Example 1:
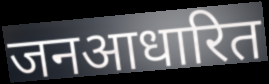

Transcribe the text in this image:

जनआधारित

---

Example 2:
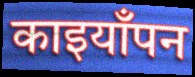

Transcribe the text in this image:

काइयाँपन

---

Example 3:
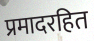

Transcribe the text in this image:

प्रमादरहित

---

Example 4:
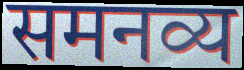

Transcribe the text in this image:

समनव्य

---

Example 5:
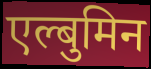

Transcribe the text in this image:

एल्बुमिन